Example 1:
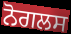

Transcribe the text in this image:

ਨੋਗਲਸ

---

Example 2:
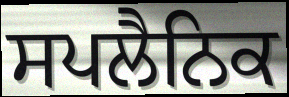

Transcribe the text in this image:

ਸਪਲੈਨਿਕ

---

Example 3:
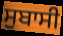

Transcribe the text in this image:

ਸੁਬਾਸੀ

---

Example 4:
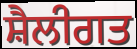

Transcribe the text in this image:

ਸ਼ੈਲੀਗਤ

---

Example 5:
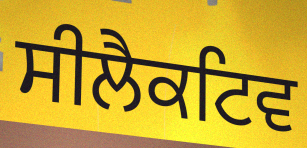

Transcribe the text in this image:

ਸੀਲੈਕਟਿਵ